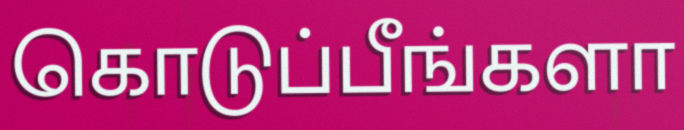
கொடுப்பீங்களா